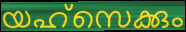
യഹ്സെക്കും